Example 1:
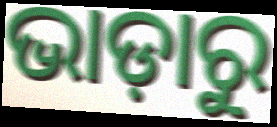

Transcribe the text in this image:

ଭାଡ଼ାରୁ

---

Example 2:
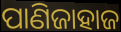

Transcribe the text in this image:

ପାଣିଜାହାଜ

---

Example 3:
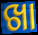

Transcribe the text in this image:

ଖା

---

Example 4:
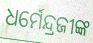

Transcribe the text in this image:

ଧର୍ମେନ୍ଦ୍ରଜୀଙ୍କ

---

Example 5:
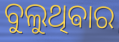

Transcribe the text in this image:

ବୁଲୁଥିଵାର